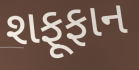
શફૂફાન